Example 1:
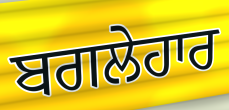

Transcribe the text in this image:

ਬਗਲੇਹਾਰ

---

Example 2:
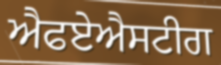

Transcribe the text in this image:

ਐਫਏਐਸਟੀਗ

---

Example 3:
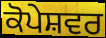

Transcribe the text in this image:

ਕੋਪੇਸ਼ਵਰ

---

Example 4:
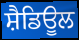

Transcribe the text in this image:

ਸ਼ੈਡਿਊਲ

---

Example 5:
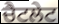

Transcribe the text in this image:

ਚੈਟਲੇਟ